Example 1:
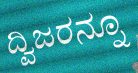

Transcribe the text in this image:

ದ್ವಿಜರನ್ನೂ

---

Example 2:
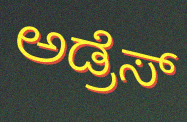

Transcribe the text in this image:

ಅಡ್ರೆಸ್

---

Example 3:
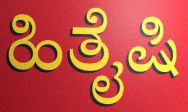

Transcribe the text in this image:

ಹಿತೈಷಿ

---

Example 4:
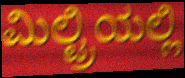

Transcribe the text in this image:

ಮಿಲ್ಟ್ರಿಯಲ್ಲಿ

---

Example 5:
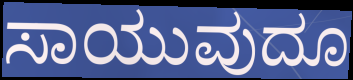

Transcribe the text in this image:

ಸಾಯುವುದೂ